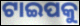
ଟାଇପକୁ